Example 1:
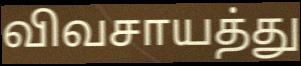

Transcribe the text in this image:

விவசாயத்து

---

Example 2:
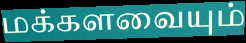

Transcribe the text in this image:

மக்களவையும்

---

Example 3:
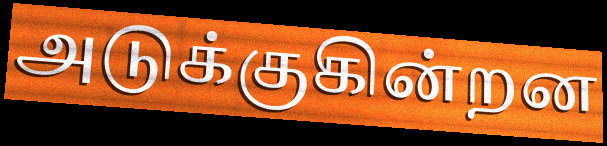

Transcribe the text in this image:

அடுக்குகின்றன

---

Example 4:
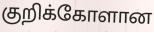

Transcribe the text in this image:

குறிக்கோளான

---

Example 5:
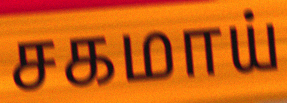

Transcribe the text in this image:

சகமாய்